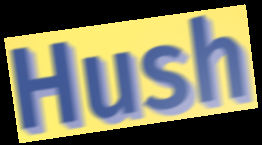
Hush